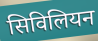
सिविलियन